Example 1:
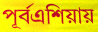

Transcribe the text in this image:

পূর্বএশিয়ায়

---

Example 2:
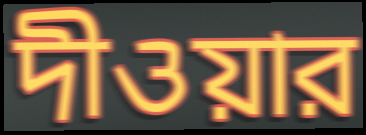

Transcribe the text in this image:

দীওয়ার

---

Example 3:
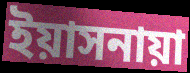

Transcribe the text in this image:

ইয়াসনায়া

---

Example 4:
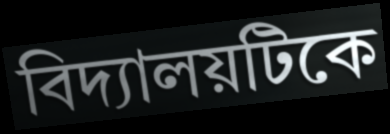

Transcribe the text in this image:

বিদ্যালয়টিকে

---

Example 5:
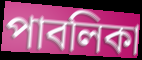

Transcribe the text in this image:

পাবলিকা